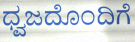
ಧ್ವಜದೊಂದಿಗೆ